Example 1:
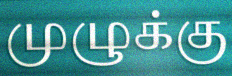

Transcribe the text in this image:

முழுக்கு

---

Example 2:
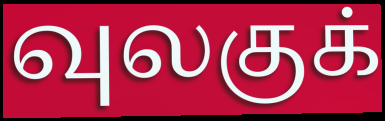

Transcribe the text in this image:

வுலகுக்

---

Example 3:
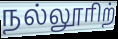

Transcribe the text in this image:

நல்லூரிற்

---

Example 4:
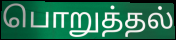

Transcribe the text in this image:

பொறுத்தல்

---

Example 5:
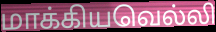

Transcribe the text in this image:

மாக்கியவெல்லி